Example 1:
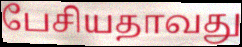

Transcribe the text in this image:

பேசியதாவது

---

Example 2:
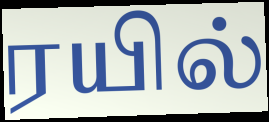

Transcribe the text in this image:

ரயில்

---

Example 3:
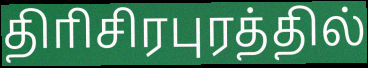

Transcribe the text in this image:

திரிசிரபுரத்தில்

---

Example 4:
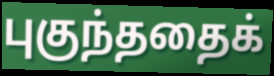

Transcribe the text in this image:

புகுந்ததைக்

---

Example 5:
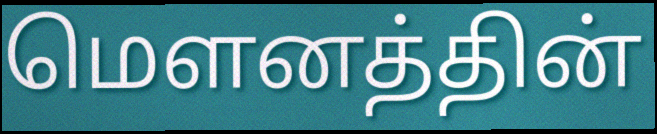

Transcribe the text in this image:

மௌனத்தின்